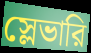
স্লেভারি